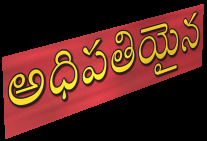
అధిపతియైన